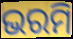
ଭରମି